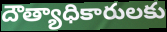
దౌత్యాధికారులకు